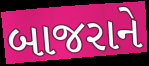
બાજરાને